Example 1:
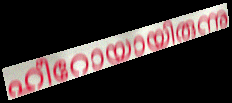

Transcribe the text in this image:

ഹീറോയായിരുന്നു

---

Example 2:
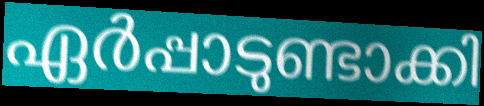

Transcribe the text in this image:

ഏർപ്പാടുണ്ടാക്കി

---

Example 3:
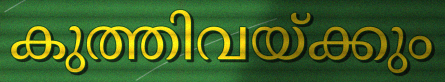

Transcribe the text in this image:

കുത്തിവയ്ക്കും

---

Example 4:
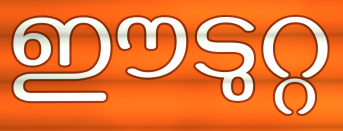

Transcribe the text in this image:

ഈടുറ്റ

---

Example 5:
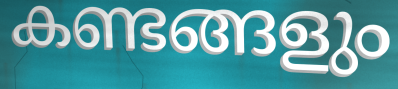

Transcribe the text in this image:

കണ്ടങ്ങളും